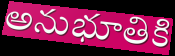
అనుభూతికి